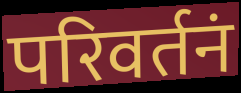
परिवर्तनं